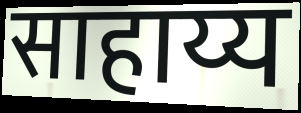
साहाय्य